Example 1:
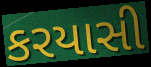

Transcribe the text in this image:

કરયાસી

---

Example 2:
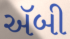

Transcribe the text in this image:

ઍબી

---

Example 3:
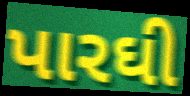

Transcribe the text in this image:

પારઘી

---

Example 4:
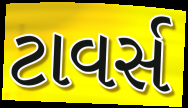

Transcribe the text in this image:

ટાવર્સ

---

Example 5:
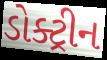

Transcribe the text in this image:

ડોક્ટ્રીન